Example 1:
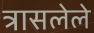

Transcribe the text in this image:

त्रासलेले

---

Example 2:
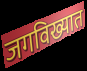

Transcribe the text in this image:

जगविख्यात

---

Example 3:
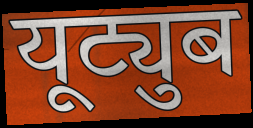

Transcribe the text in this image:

यूट्युब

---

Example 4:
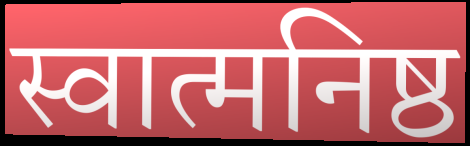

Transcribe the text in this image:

स्वात्मनिष्ठ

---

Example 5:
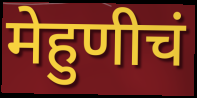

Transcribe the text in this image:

मेहुणीचं